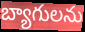
బ్యాగులను